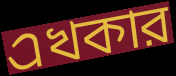
এখকার